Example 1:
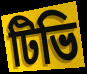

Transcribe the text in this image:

টিভি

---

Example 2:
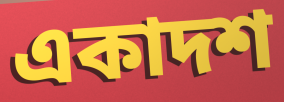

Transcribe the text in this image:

একাদশ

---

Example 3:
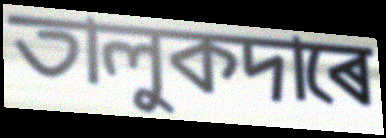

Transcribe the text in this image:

তালুকদাৰে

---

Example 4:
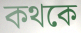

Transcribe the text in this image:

কথকে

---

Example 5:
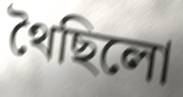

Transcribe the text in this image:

থৈছিলো